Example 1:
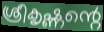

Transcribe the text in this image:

ശ്രീകൃഷ്ണന്റെ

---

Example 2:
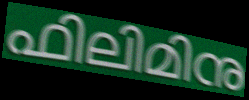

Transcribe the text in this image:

ഫിലിമിനു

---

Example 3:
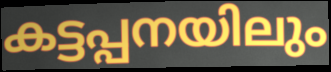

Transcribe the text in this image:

കട്ടപ്പനയിലും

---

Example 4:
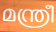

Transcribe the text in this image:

മന്ത്രീ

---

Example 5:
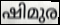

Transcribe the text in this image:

ഷിമുര